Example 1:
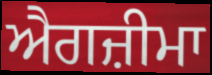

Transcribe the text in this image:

ਐਗਜ਼ੀਮਾ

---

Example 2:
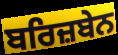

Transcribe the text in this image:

ਬਰਿਜ਼ਬੇਨ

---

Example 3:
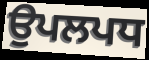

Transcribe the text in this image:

ਉਪਲਪਧ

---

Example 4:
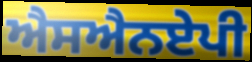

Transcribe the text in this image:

ਐਸਐਨਏਪੀ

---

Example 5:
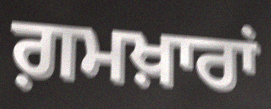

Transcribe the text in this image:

ਗ਼ਮਖ਼ਾਰਾਂ